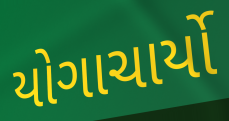
યોગાચાર્યો